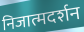
निजात्मदर्शन